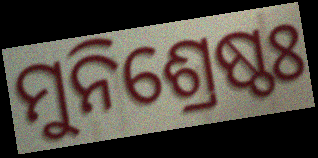
ମୁନିଶ୍ରେଷ୍ଠଃ